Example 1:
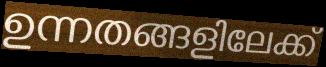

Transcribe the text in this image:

ഉന്നതങ്ങളിലേക്ക്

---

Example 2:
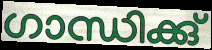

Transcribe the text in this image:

ഗാന്ധിക്കു്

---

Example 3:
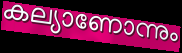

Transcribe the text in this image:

കല്യാണോന്നും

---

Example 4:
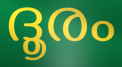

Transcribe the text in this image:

ദൂരം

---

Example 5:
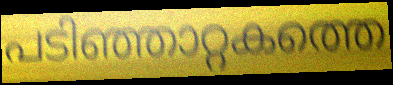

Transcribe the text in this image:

പടിഞ്ഞാറ്റകത്തെ